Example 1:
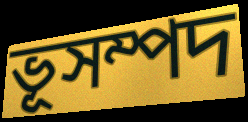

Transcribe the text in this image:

ভূসম্পদ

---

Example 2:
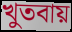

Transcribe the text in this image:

খুতবায়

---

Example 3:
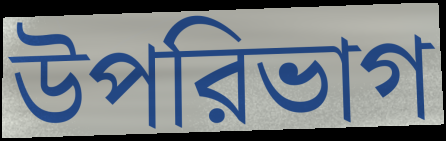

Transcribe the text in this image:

উপরিভাগ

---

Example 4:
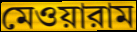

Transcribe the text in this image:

মেওয়ারাম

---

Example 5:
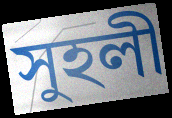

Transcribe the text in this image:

সুহলী